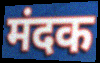
मंदक